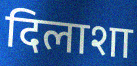
दिलाशा